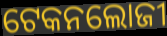
ଟେକନଲୋଜୀ